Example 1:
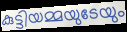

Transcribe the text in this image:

കുട്ടിയമ്മയുടേയും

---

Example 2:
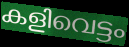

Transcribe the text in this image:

കളിവെട്ടം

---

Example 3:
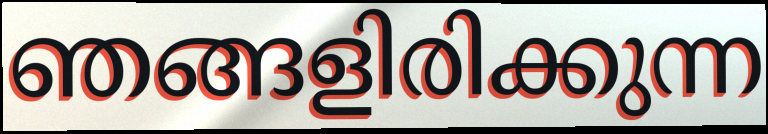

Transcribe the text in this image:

ഞങ്ങളിരിക്കുന്ന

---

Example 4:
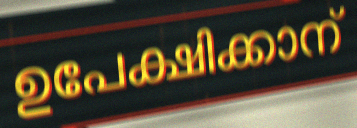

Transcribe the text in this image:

ഉപേക്ഷിക്കാന്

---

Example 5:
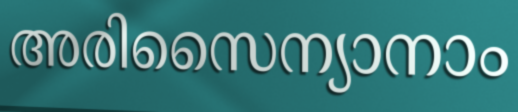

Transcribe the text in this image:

അരിസൈന്യാനാം